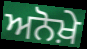
ਅਨੋਖ਼ੇ